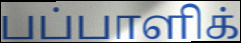
பப்பாளிக்